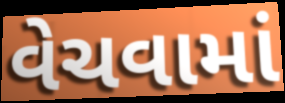
વેચવામાં